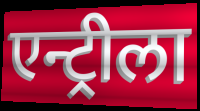
एन्ट्रीला